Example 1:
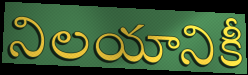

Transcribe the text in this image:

నిలయానికీ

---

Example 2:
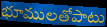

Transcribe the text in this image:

భూములతోపాటు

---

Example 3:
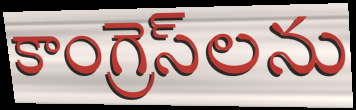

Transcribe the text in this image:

కాంగ్రెస్‌లను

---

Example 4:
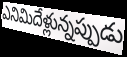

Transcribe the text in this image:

ఎనిమిదేళ్లున్నప్పుడు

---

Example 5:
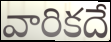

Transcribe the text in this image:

వారికదే